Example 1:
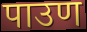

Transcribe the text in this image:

पाउण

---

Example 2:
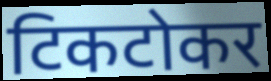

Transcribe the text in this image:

टिकटोकर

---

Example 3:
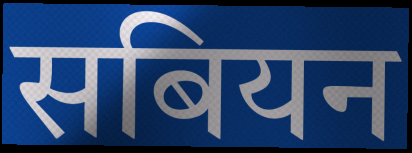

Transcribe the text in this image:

सबियन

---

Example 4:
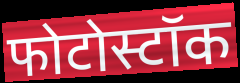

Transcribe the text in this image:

फोटोस्टॉक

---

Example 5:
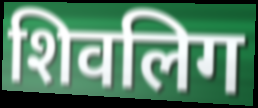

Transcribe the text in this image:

शिवलिग